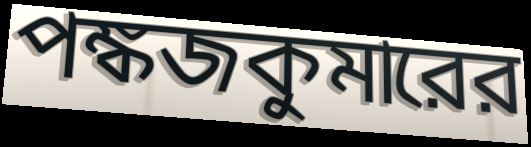
পঙ্কজকুমারের